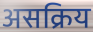
असक्रिय